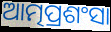
ଆତ୍ମପ୍ରଶଂସା